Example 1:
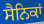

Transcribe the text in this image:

ਸੈਨਿਕਾਂ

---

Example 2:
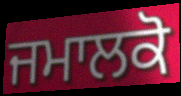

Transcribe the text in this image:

ਜਮਾਲਕੋ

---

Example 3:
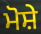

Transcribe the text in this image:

ਮੋਸ਼ੇ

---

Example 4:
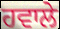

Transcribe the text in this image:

ਹਵਾਲੇ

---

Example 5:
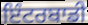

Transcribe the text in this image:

ਇੰਟਰਬਾਡੀ